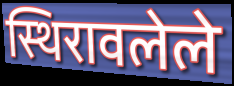
स्थिरावलेले